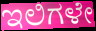
ಇಲಿಗಳೇ